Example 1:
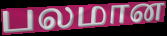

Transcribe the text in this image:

பலமான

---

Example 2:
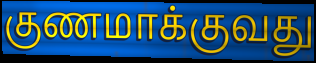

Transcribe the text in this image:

குணமாக்குவது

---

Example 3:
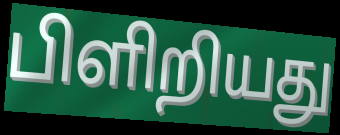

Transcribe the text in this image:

பிளிறியது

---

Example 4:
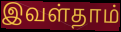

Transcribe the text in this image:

இவள்தாம்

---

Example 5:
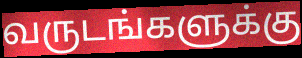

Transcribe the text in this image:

வருடங்களுக்கு